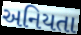
અનિયતા